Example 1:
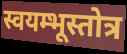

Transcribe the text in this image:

स्वयम्भूस्तोत्र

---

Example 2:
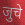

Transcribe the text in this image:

जुचे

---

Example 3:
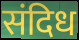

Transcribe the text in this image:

संदिध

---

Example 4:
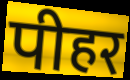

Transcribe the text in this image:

पीहर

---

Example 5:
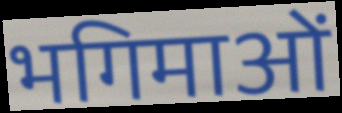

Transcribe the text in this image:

भगिमाओं